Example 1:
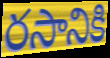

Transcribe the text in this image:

రసానికి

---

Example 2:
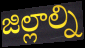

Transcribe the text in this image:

జిల్లాల్ని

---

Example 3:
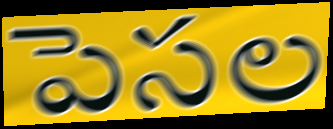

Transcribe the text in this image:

పెసల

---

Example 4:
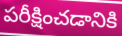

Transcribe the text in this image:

పరీక్షించడానికి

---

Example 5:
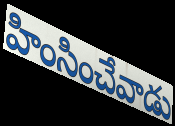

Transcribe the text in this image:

హింసించేవాడు